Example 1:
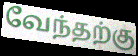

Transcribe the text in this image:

வேந்தற்கு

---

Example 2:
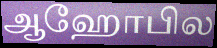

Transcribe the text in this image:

ஆஹோபில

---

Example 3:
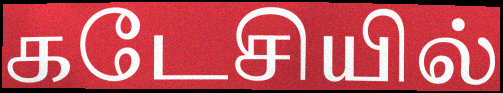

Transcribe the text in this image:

கடேசியில்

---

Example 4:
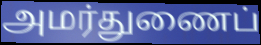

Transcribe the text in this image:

அமர்துணைப்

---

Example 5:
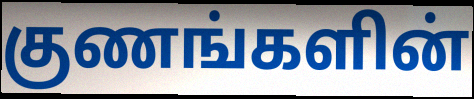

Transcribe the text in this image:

குணங்களின்